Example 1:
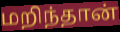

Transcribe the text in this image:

மறிந்தான்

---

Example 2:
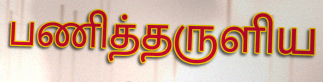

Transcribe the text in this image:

பணித்தருளிய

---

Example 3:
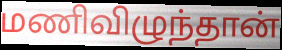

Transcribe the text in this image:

மணிவிழுந்தான்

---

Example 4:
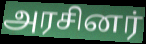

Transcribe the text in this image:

அரசினர்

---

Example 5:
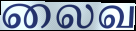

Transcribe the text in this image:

லைவ